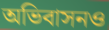
অভিবাসনও